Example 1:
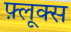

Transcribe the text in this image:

फ़्लूक्स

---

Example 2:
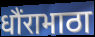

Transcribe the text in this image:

धौंराभाठा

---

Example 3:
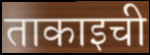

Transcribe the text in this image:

ताकाइची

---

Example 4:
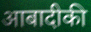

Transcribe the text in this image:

आबादीकी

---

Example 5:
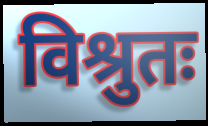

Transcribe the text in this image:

विश्रुतः